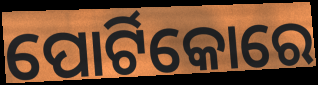
ପୋର୍ଟିକୋରେ